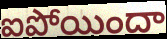
ఐపోయిందా